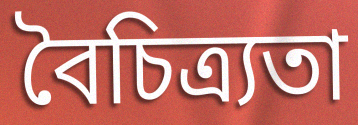
বৈচিত্ৰ্যতা